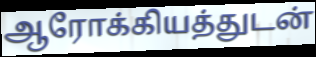
ஆரோக்கியத்துடன்